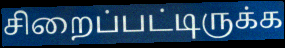
சிறைப்பட்டிருக்க